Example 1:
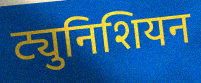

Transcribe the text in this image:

ट्युनिशियन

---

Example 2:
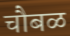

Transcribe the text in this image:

चौबळ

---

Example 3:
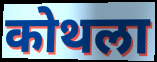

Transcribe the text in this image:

कोथला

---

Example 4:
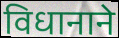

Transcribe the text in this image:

विधानाने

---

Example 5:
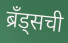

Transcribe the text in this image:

ब्रॅंड्सची